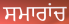
ਸਮਾਰਾਂਚ